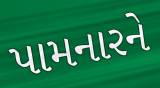
પામનારને